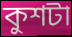
কুশটা